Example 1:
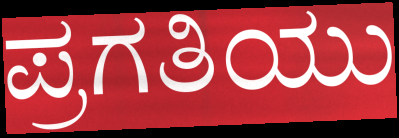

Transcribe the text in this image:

ಪ್ರಗತಿಯು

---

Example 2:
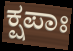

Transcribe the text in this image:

ಕ್ಷಪಾಃ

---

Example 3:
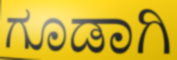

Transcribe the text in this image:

ಗೂಡಾಗಿ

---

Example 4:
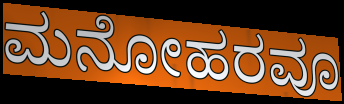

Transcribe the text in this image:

ಮನೋಹರವೂ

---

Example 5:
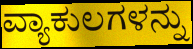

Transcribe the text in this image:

ವ್ಯಾಕುಲಗಳನ್ನು